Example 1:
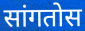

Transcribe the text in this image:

सांगतोस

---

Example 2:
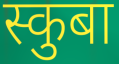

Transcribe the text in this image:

स्कुबा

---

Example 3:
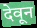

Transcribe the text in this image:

देवून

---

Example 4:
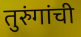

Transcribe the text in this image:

तुरुंगांची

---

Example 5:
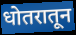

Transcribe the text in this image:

धोतरातून